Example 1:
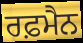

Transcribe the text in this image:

ਰਫ਼ਮੈਨ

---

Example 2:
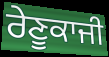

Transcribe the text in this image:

ਰੇਣੂਕਾਜੀ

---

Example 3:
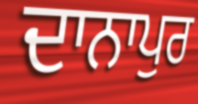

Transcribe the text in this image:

ਦਾਨਾਪੁਰ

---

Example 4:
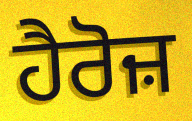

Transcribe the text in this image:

ਹੈਰੋਜ਼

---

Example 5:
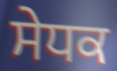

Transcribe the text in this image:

ਸੇਧਕ